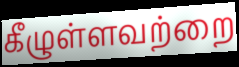
கீழுள்ளவற்றை